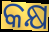
କକ୍ଷ